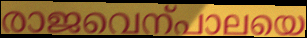
രാജവെന്പാലയെ